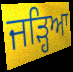
ਜੜ੍ਹਿਆ